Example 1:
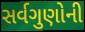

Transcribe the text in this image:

સર્વગુણોની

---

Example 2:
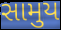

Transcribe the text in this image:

સામુય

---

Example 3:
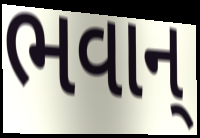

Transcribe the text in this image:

ભવાન્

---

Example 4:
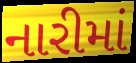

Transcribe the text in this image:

નારીમાં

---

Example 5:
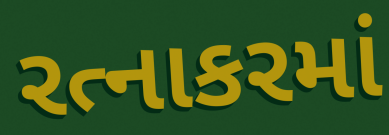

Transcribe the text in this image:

રત્નાકરમાં